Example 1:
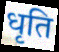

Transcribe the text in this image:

धृति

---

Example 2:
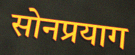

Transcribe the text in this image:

सोनप्रयाग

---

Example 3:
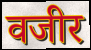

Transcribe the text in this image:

वजीर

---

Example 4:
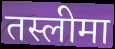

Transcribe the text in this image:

तस्लीमा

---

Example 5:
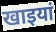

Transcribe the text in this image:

खाइयां